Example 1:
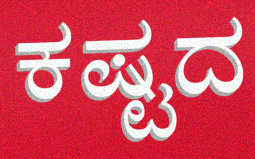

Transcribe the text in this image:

ಕಷ್ಟದ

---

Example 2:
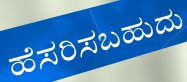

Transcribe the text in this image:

ಹೆಸರಿಸಬಹುದು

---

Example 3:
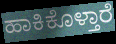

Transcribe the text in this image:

ಹಾಕಿಕೊಳ್ತಾರೆ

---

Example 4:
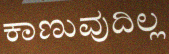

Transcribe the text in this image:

ಕಾಣುವುದಿಲ್ಲ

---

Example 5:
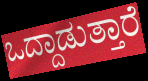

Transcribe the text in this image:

ಒದ್ದಾಡುತ್ತಾರೆ